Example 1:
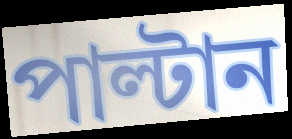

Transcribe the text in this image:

পাল্টান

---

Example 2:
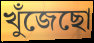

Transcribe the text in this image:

খুঁজেছো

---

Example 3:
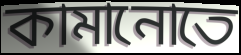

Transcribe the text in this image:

কামানোতে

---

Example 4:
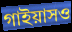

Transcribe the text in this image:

গাইয়াসও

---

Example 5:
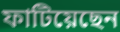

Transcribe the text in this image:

ফাটিয়েছেন